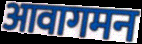
आवागमन